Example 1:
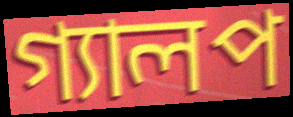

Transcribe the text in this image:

গ্যালপ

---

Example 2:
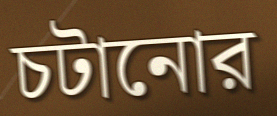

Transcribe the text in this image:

চটানোর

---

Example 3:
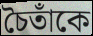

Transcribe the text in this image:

চৈতাঁকে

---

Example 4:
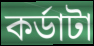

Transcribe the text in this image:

কর্ডাটা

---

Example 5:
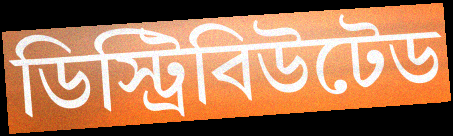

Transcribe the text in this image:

ডিস্ট্রিবিউটেড